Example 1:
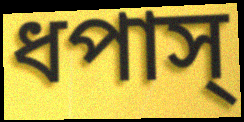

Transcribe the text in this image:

ধপাস্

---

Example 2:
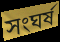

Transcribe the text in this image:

সংঘর্ষ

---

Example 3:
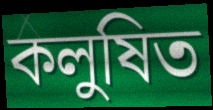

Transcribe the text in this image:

কলুষিত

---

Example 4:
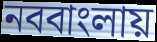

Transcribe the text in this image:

নববাংলায়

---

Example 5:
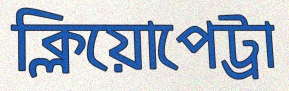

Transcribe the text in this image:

ক্লিয়োপেট্রা